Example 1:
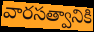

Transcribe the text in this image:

వారసత్వానికి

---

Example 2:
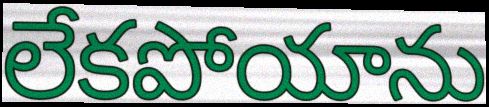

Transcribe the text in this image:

లేకపోయాను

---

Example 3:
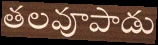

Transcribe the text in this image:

తలవూపాడు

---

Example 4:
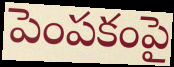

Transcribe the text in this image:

పెంపకంపై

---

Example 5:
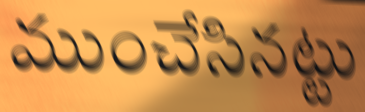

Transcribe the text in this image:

ముంచేసినట్టు